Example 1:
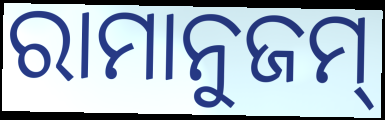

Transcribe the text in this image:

ରାମାନୁଜମ୍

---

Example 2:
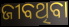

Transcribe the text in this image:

ଜୀବଥିବା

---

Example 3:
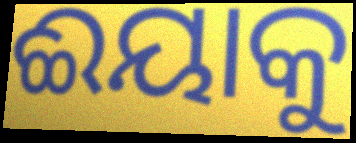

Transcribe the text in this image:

ଈୟାକୁ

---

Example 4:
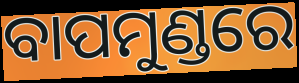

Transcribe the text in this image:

ବାପମୁଣ୍ଡରେ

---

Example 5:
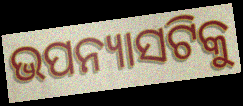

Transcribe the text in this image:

ଭପନ୍ୟାସଟିକୁ